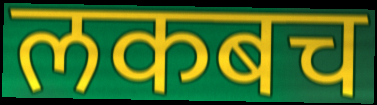
लकबच